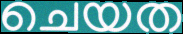
ചെയത